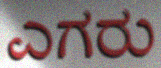
ಎಗರು